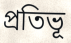
প্রতিভূ